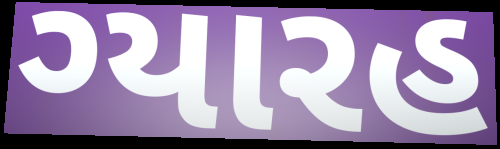
ગ્યારહ